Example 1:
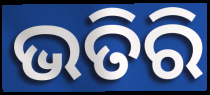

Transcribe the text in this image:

ଭତିରି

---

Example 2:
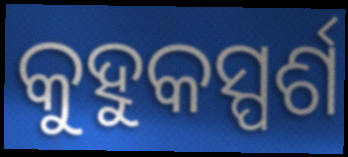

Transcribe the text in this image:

କୁହୁକସ୍ପର୍ଶ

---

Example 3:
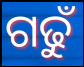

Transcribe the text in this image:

ଗଢୁଁ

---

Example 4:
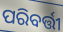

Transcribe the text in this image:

ପରିବର୍ତ୍ତୀ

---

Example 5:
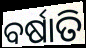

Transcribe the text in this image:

ବର୍ଷାତି